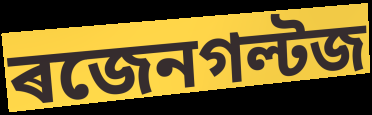
ৰজেনগল্টজ